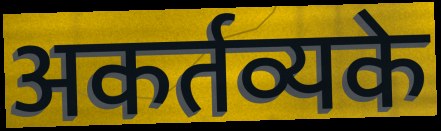
अकर्तव्यके